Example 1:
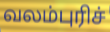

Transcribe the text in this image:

வலம்புரிச்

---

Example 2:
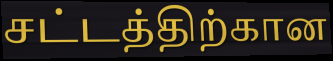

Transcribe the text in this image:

சட்டத்திற்கான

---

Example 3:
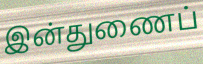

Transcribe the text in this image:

இன்துணைப்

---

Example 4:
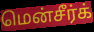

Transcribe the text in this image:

மென்சீர்க்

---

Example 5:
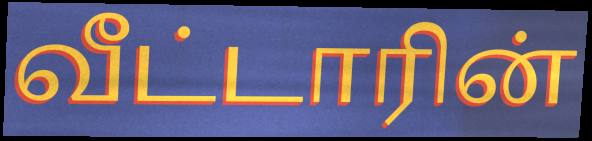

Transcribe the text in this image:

வீட்டாரின்